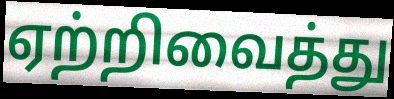
ஏற்றிவைத்து